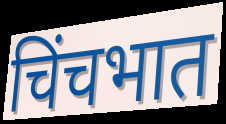
चिंचभात